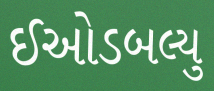
ઈઓડબલ્યુ